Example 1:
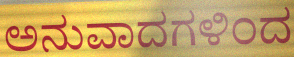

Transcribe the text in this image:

ಅನುವಾದಗಳಿಂದ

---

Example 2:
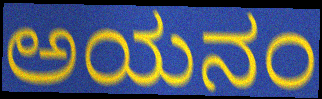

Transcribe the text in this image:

ಅಯನಂ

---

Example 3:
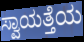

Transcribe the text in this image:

ಸ್ವಾಯತ್ತೆಯ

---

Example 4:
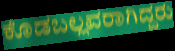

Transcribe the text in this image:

ಕೊಡಬಲ್ಲವರಾಗಿದ್ದರು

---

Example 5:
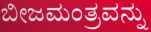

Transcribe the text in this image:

ಬೀಜಮಂತ್ರವನ್ನು